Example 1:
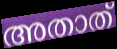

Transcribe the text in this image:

അതാത്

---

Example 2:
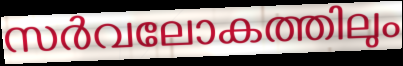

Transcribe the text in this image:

സർവലോകത്തിലും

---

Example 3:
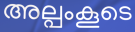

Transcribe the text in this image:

അല്പംകൂടെ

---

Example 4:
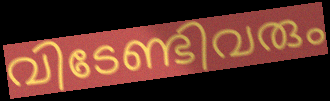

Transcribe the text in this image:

വിടേണ്ടിവരും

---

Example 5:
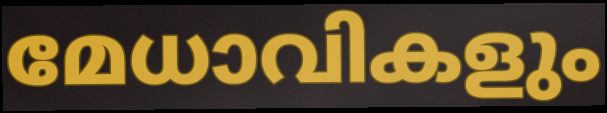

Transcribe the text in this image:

മേധാവികളും